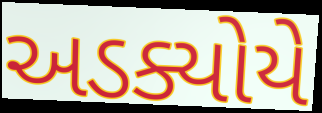
અડક્યોયે